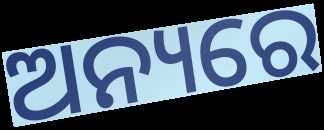
ଅନ୍ୟରେ